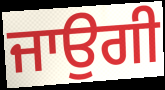
ਜਾਉਗੀ